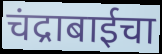
चंद्राबाईचा